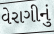
વેરાગીનું